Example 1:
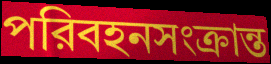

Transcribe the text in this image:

পরিবহনসংক্রান্ত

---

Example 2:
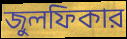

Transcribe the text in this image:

জুলফিকার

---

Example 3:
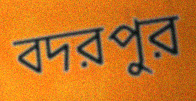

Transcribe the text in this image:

বদরপুর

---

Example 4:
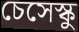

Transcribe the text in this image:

চেসেস্কু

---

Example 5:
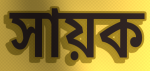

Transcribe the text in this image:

সায়ক